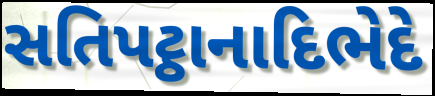
સતિપટ્ઠાનાદિભેદે